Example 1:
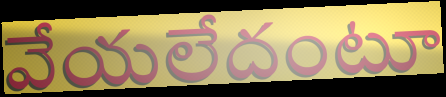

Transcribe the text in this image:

వేయలేదంటూ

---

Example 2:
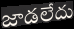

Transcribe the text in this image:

జాడలేదు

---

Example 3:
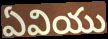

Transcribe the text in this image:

ఏవియు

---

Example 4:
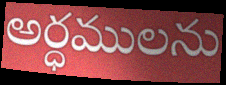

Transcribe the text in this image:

అర్ధములను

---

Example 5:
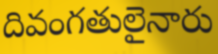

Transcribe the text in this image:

దివంగతులైనారు